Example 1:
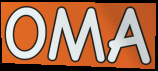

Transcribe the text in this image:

OMA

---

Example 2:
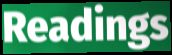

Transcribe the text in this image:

Readings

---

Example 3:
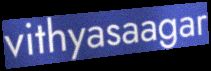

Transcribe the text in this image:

vithyasaagar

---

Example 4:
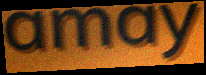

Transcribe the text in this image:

amay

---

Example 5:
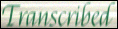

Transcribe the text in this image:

Transcribed